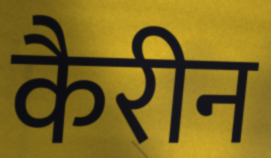
कैरीन